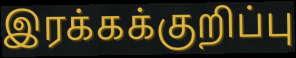
இரக்கக்குறிப்பு